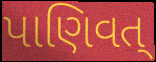
પાણિવત્